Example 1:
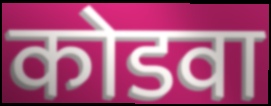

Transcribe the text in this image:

कोडवा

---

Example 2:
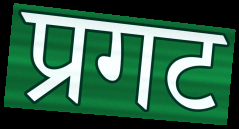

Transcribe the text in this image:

प्रगट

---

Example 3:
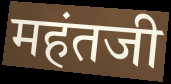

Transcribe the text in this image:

महंतजी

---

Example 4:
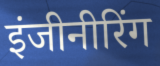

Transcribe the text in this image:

इंजीनीरिंग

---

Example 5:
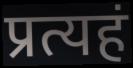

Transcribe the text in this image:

प्रत्यहं